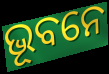
ଭୂବନେ